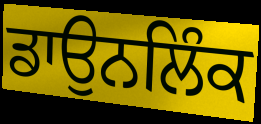
ਡਾਉਨਲਿੰਕ